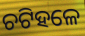
ଚଟିହଳେ